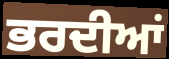
ਭਰਦੀਆਂ